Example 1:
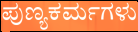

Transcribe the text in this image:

ಪುಣ್ಯಕರ್ಮಗಳು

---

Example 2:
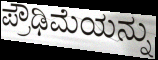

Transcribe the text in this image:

ಪ್ರೌಢಿಮೆಯನ್ನು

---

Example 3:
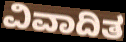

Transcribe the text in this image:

ವಿವಾದಿತ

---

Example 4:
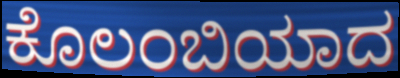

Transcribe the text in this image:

ಕೊಲಂಬಿಯಾದ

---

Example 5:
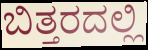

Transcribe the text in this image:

ಬಿತ್ತರದಲ್ಲಿ